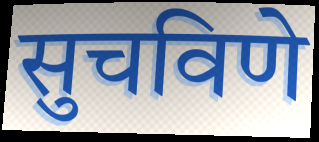
सुचविणे